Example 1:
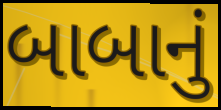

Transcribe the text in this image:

બાબાનું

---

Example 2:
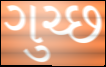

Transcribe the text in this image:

ગુચ્છ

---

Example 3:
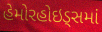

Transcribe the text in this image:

હેમોરહોઇડ્સમાં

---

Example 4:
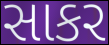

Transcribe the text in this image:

સાકર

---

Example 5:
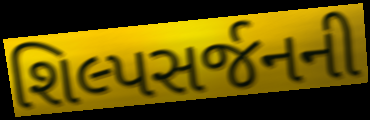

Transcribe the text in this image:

શિલ્પસર્જનની